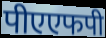
पीएएफपी